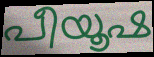
പീയൂഷ